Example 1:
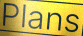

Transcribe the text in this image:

Plans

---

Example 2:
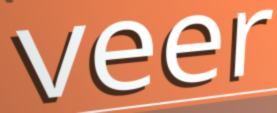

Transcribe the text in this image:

veer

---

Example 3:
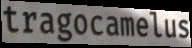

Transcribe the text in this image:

tragocamelus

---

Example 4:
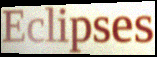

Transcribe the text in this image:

Eclipses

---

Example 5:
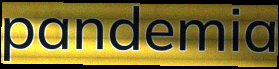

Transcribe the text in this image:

pandemia